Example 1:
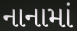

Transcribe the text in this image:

નાનામાં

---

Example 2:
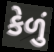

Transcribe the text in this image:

કેળું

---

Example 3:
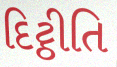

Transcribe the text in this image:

દિટ્ઠીતિ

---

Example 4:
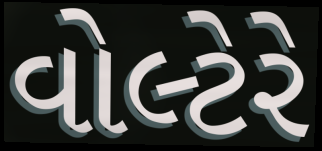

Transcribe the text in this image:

વોલ્ટેરે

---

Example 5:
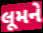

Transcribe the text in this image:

લૂમને